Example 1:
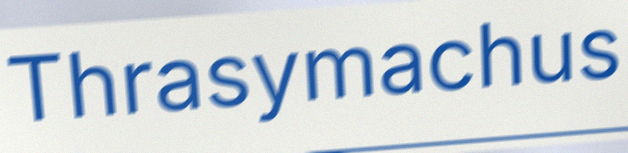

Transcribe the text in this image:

Thrasymachus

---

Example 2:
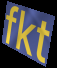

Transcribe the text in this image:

fkt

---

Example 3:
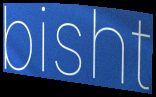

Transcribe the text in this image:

bisht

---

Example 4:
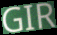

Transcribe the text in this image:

GIR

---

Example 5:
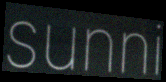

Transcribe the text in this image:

sunni